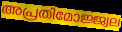
അപ്രതിമോജ്ജ്വല